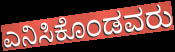
ಎನಿಸಿಕೊಂಡವರು